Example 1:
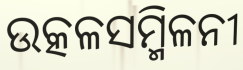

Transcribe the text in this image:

ଉତ୍କଳସମ୍ମିଳନୀ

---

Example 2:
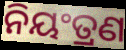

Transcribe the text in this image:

ନିୟଂତ୍ରଣ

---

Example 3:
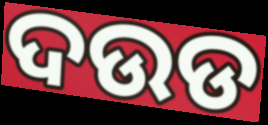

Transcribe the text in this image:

ଦଉଡ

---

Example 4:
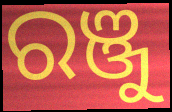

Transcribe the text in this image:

ରଞ୍ଜୁ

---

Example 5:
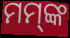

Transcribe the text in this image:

ମମ୍‍ଙ୍କ